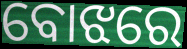
ବୋଝରେ